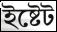
ইষ্টেট